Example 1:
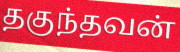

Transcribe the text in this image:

தகுந்தவன்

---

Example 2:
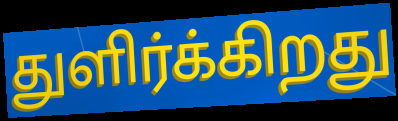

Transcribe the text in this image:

துளிர்க்கிறது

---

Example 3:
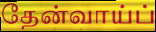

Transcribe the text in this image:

தேன்வாய்ப்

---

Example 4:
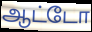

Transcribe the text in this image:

ஆட்டோ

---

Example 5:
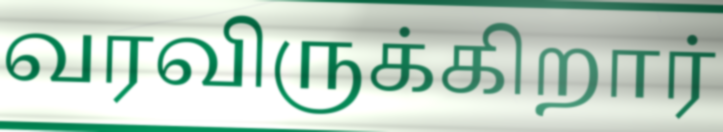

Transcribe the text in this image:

வரவிருக்கிறார்